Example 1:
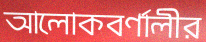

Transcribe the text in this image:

আলোকবর্ণালীর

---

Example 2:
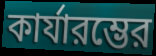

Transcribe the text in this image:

কার্যারম্ভের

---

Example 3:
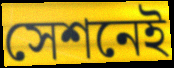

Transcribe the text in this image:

সেশনেই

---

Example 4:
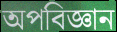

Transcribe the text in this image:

অপবিজ্ঞান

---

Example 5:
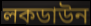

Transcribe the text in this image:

লকডাউন